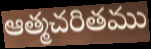
ఆత్మచరితము